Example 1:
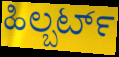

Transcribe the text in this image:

ಹಿಲ್ಬರ್ಟ್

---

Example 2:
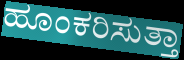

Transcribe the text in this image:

ಹೂಂಕರಿಸುತ್ತಾ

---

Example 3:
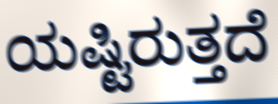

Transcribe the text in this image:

ಯಷ್ಟಿರುತ್ತದೆ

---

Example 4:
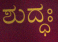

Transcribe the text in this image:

ಶುದ್ಧಃ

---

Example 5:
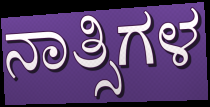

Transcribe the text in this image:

ನಾತ್ಸಿಗಳ